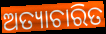
ଅତ୍ୟାଚାରିତ